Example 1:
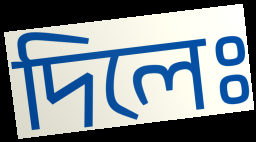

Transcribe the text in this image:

দিলেঃ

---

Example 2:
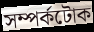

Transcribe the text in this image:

সম্পৰ্কটোক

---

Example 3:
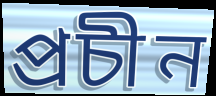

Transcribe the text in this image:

প্ৰচীন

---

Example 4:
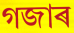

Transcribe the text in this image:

গজাৰ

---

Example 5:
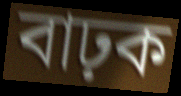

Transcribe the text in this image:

বাঢ়ক